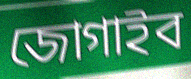
জোগাইব